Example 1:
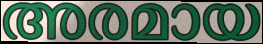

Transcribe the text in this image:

അരമായ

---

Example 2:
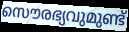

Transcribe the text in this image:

സൌരഭ്യവുമുണ്ട്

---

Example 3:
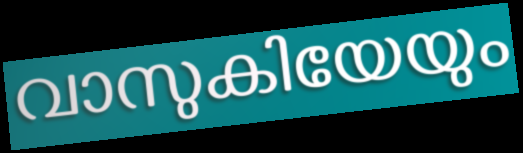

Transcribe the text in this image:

വാസുകിയേയും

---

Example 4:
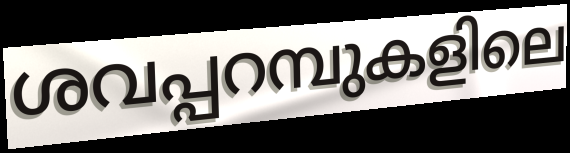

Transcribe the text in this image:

ശവപ്പറമ്പുകളിലെ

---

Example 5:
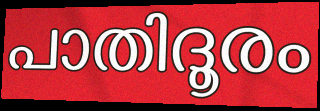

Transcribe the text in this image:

പാതിദൂരം